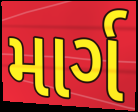
માર્ગ